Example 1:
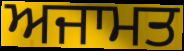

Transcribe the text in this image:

ਅਜਾਮਤ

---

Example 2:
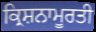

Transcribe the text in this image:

ਕ੍ਰਿਸ਼ਨਾਮੂਰਤੀ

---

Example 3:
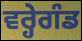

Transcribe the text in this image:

ਵਰ੍ਹੇਗੰਡ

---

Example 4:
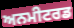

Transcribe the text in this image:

ਅਨਮੀਟਰਡ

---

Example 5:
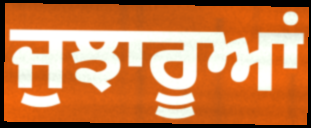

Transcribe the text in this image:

ਜੁਝਾਰੂਆਂ